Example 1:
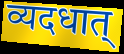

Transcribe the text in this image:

व्यदधात्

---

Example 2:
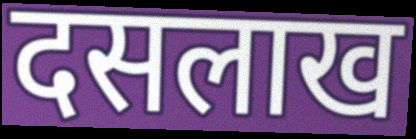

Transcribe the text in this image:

दसलाख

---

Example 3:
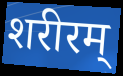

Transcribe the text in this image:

शरीरम्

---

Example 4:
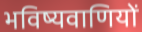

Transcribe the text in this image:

भविष्यवाणियों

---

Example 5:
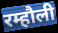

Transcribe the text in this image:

रम्हौली